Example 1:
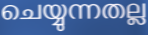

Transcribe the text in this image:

ചെയ്യുന്നതല്ല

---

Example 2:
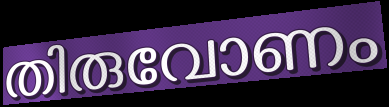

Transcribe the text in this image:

തിരുവോണം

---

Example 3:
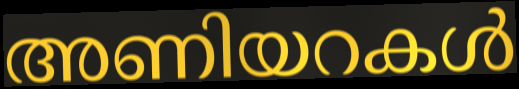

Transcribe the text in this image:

അണിയറകൾ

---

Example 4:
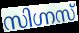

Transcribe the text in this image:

സിഗ്നസ്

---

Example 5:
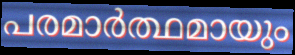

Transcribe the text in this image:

പരമാർത്ഥമായും